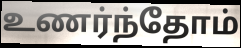
உணர்ந்தோம்